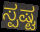
ಸ್ಪಷ್ಟ